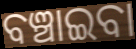
ବଞ୍ଚାଇବା